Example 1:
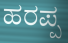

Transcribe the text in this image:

ಹರಪ್ಪ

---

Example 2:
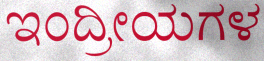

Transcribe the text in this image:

ಇಂದ್ರೀಯಗಳ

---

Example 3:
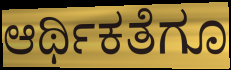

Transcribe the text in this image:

ಆರ್ಥಿಕತೆಗೂ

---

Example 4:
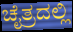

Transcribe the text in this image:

ಚೈತ್ರದಲ್ಲಿ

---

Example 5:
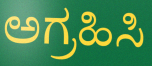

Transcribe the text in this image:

ಅಗ್ರಹಿಸಿ